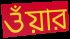
ওঁয়ার